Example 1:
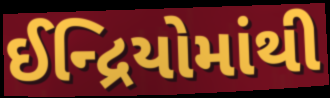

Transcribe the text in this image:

ઈન્દ્રિયોમાંથી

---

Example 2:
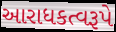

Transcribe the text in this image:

આરાધકત્વરૂપે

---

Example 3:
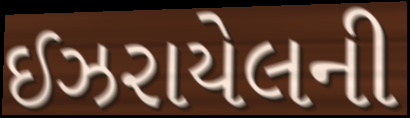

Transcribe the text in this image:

ઈઝરાયેલની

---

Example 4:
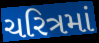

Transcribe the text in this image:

ચરિત્રમાં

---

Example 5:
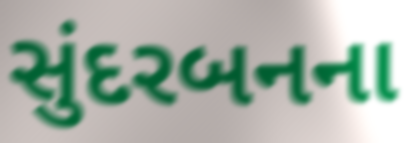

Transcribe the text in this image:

સુંદરબનના